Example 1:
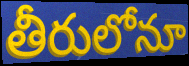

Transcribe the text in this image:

తీరులోనూ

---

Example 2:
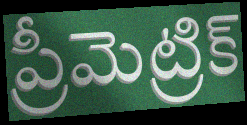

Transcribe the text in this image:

ప్రీమెట్రిక్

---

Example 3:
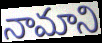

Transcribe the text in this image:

నామాని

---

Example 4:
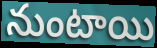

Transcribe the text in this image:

నుంటాయి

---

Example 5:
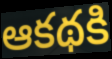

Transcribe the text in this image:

ఆకథకి